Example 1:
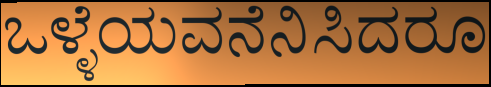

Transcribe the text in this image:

ಒಳ್ಳೆಯವನೆನಿಸಿದರೂ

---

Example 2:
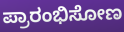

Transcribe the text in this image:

ಪ್ರಾರಂಭಿಸೋಣ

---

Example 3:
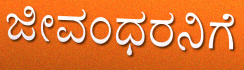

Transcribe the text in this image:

ಜೀವಂಧರನಿಗೆ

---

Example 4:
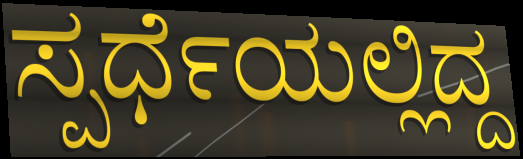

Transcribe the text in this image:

ಸ್ಪರ್ಧೆಯಲ್ಲಿದ್ದ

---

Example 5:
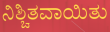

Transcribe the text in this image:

ನಿಶ್ಚಿತವಾಯಿತು